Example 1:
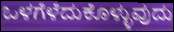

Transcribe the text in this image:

ಒಳಗೆಳೆದುಕೊಳ್ಳುವುದು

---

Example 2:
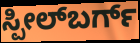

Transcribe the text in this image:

ಸ್ಪೀಲ್‌ಬರ್ಗ್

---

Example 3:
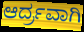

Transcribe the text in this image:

ಆರ್ದ್ರವಾಗಿ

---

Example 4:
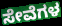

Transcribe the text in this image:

ಸೇವೆಗಳ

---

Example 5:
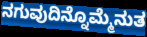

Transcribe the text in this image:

ನಗುವುದಿನ್ನೊಮ್ಮೆನುತ